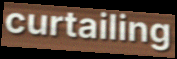
curtailing